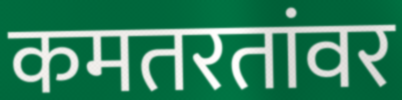
कमतरतांवर